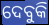
ଦେବୁକି